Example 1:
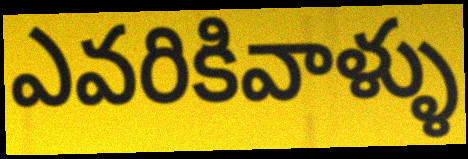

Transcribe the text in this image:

ఎవరికివాళ్ళు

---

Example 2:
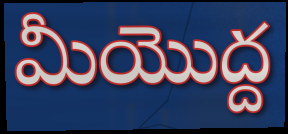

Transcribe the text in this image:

మీయొద్ద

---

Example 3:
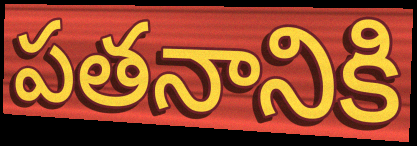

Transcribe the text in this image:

పతనానికి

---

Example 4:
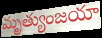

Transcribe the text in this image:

మృత్యుంజయా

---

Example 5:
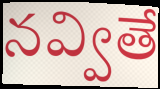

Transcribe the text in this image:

నవ్వితే